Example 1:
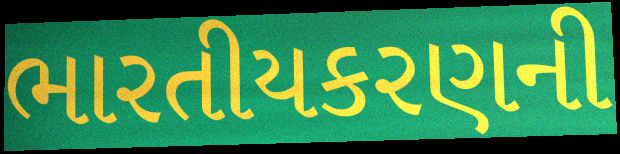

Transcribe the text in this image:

ભારતીયકરણની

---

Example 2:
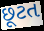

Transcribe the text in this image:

છૂટત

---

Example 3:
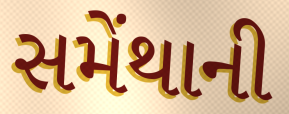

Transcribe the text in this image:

સમેંથાની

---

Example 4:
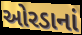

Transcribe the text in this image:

ઓરડાનાં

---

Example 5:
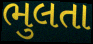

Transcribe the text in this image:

ભુલતા